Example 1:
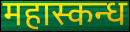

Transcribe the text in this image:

महास्कन्ध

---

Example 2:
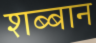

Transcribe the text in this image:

शब्बान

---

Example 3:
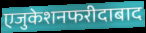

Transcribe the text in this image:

एजुकेशनफरीदाबाद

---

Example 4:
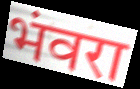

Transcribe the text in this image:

भंवरा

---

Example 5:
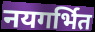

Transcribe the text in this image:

नयगर्भित